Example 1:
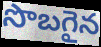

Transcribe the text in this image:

సొబగైన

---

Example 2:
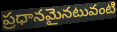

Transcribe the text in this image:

ప్రధానమైనటువంటి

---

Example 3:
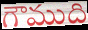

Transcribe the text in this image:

గౌముది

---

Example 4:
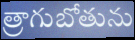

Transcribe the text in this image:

త్రాగుబోతును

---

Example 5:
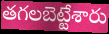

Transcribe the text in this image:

తగలబెట్టేశారు